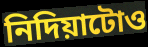
নিদিয়াটোও